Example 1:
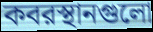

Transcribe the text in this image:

কবরস্থানগুলো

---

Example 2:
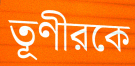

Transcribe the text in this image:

তূণীরকে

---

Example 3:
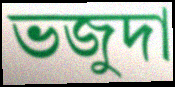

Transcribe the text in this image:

ভজুদা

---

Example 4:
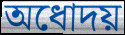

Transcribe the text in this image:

অধোদয়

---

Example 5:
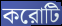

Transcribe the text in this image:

করোটি